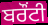
ਬਰੌਂਟੀ